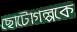
ছোটোগল্পকে